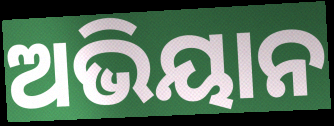
ଅଭିୟାନ